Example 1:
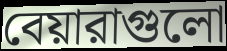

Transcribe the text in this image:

বেয়ারাগুলো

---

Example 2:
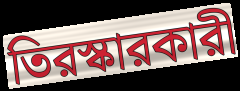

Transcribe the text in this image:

তিরস্কারকারী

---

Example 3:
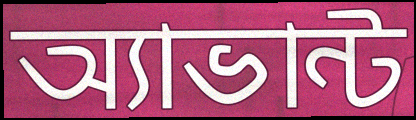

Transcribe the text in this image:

অ্যাভান্ট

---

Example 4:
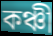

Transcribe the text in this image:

কঞ্চী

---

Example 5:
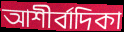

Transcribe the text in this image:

আশীর্বাদিকা